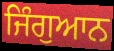
ਜਿੰਗੁਆਨ